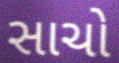
સાચો